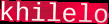
khilelo